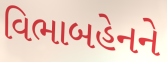
વિભાબહેનને